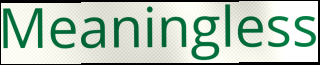
Meaningless